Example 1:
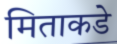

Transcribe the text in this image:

मिताकडे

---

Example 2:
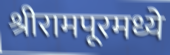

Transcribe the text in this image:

श्रीरामपूरमध्ये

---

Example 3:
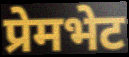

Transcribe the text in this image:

प्रेमभेट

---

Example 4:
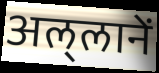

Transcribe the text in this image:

अल्लानें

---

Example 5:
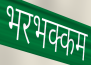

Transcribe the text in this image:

भरभक्कम